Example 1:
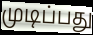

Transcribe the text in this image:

முடிப்பது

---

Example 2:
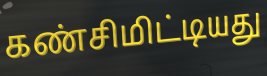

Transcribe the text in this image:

கண்சிமிட்டியது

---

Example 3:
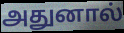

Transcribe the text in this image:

அதுனால்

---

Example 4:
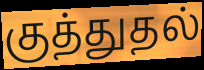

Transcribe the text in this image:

குத்துதல்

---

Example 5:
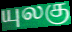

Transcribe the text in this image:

யுலகு